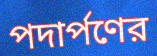
পদার্পণের